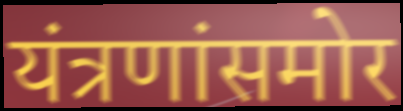
यंत्रणांसमोर